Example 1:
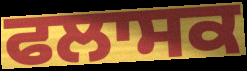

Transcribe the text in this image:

ਫਲਾਸਕ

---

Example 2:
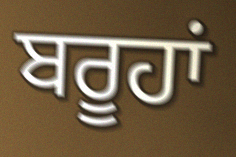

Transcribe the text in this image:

ਬਰੂਹਾਂ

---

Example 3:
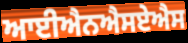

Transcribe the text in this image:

ਆਈਐਨਐਸਏਐਸ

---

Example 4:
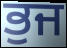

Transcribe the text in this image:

ਭੁਜ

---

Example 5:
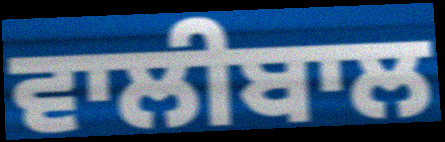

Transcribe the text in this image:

ਵਾਲੀਬਾਲ